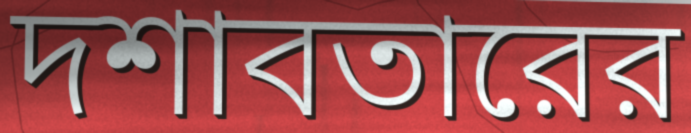
দশাবতারের